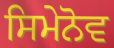
ਸਿਮੇਨੋਵ